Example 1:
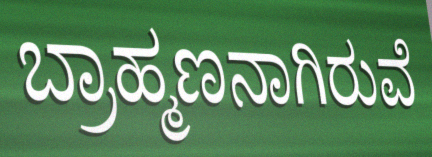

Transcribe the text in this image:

ಬ್ರಾಹ್ಮಣನಾಗಿರುವೆ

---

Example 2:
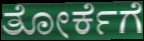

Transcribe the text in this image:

ತೋರ್ಕೆಗೆ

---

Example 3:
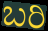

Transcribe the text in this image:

ಬರಿ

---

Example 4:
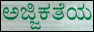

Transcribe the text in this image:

ಅಜ್ಜಿಕತೆಯ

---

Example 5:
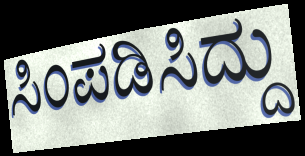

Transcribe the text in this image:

ಸಿಂಪಡಿಸಿದ್ದು